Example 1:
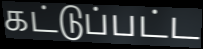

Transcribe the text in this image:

கட்டுப்பட்ட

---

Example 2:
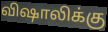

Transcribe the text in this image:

விஷாலிக்கு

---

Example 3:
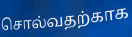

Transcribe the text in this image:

சொல்வதற்காக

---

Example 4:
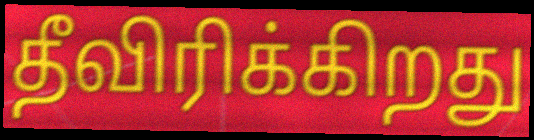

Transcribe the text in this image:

தீவிரிக்கிறது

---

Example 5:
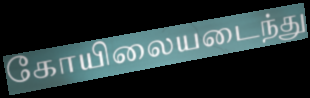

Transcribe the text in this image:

கோயிலையடைந்து